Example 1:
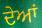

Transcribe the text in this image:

ਦੇਆਂ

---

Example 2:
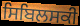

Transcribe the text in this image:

ਸਿਬਿਲਸਕੀ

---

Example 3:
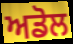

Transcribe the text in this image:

ਅਡੋਲ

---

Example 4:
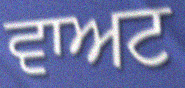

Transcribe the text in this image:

ਵਾਅਟ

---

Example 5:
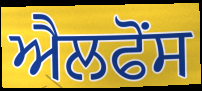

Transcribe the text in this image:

ਐਲਫੋਂਸ